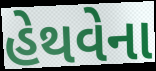
હેથવેના